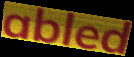
abled